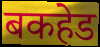
बकहेड